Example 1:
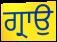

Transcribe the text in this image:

ਗ੍ਰਾਉ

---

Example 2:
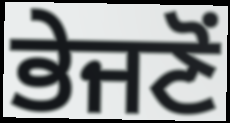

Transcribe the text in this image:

ਭੇਜਣੋਂ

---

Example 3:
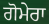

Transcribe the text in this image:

ਗੋਮੇਰਾ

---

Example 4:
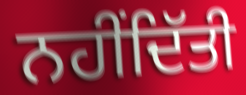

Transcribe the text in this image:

ਨਹੀਂਦਿੱਤੀ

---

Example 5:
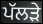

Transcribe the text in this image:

ਪੱਲੜੇ